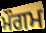
ਮੌਗਮ